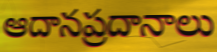
ఆదానప్రదానాలు